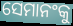
ସେମାନଂକୁ